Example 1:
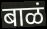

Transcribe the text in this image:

बाळं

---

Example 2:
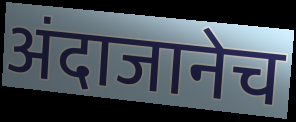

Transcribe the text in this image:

अंदाजानेच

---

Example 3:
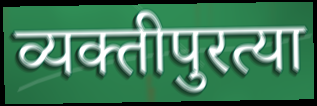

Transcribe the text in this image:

व्यक्तीपुरत्या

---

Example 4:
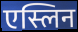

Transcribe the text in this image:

एस्लिन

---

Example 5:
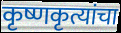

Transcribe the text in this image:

कृष्णकृत्यांचा